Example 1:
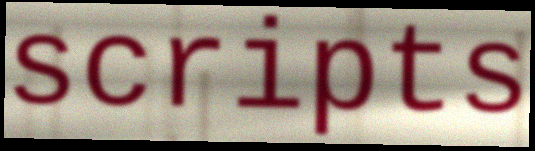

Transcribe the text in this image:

scripts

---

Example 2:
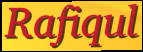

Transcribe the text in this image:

Rafiqul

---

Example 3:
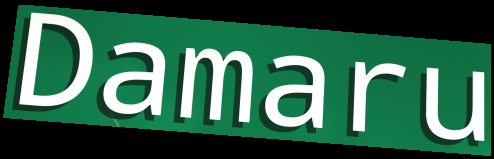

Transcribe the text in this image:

Damaru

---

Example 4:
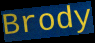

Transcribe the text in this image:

Brody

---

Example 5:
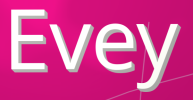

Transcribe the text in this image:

Evey